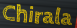
Chirala